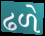
ઢળે